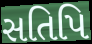
સતિપિ